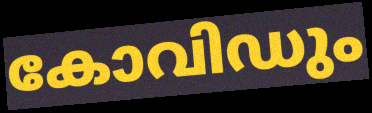
കോവിഡും